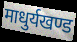
माधुर्यखण्ड